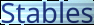
Stables